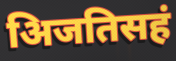
अिजतिसहं